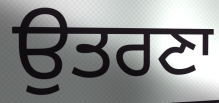
ਉਤਰਣਾ